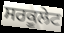
ਸਰਕੂਲੇਟ